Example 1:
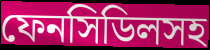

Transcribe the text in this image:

ফেনসিডিলসহ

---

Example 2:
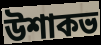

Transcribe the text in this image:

উশাকভ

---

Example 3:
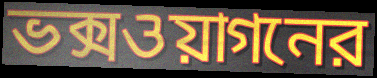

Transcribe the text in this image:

ভক্সওয়াগনের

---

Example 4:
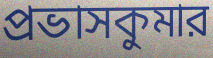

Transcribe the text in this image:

প্রভাসকুমার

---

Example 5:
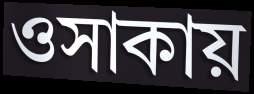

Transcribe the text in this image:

ওসাকায়